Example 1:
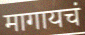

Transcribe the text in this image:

मागायचं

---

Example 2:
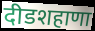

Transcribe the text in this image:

दीडशहाणा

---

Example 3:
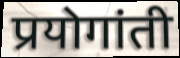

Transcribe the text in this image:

प्रयोगांती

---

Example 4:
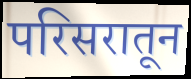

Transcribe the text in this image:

परिसरातून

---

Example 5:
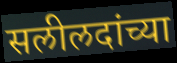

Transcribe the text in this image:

सलीलदांच्या